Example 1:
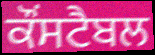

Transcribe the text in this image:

ਕੌਂਸਟੈਬਲ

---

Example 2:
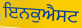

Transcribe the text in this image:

ਇਨਕੁਐਸਟ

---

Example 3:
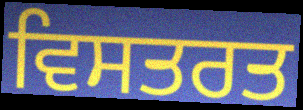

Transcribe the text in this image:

ਵਿਸਤਰਤ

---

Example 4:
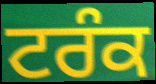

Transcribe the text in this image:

ਟਰੰਕ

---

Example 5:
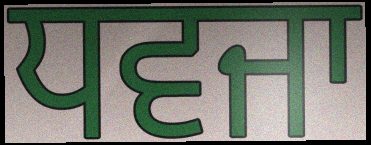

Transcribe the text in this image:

ਧਵਜਾ